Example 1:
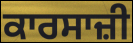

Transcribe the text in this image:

ਕਾਰਸਾਜ਼ੀ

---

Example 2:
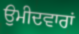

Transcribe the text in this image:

ਉੁਮੀਦਵਾਰਾਂ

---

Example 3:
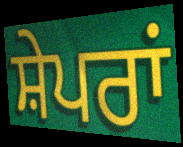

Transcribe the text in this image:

ਸ਼ੇਪਰਾਂ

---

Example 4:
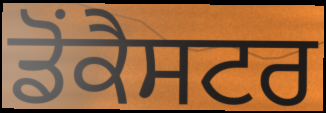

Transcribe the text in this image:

ਡੋਂਕੈਸਟਰ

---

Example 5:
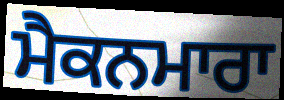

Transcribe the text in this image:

ਮੈਕਨਮਾਰਾ